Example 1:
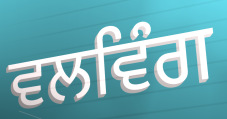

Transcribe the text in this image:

ਵਲਵਿੰਗ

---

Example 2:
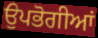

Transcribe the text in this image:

ਉਪਭੋਗੀਆਂ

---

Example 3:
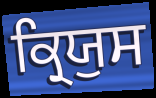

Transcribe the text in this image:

ਕ੍ਰਿਯੁਸ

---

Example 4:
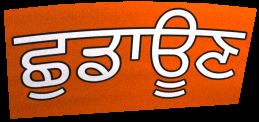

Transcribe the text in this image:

ਛੁਡਾਊਣ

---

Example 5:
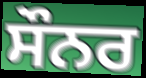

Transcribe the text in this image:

ਸੌਨਰ